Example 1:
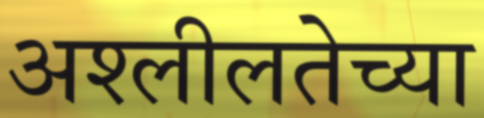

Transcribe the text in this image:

अश्‍लीलतेच्या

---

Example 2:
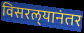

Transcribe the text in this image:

विसरल्यानंतर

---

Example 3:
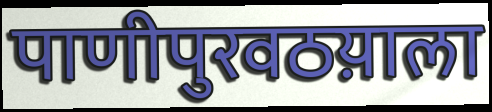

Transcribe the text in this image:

पाणीपुरवठय़ाला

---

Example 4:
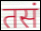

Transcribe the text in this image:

तसं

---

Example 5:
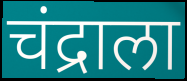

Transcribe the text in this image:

चंद्राला